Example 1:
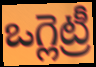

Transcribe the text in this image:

ఒగ్లెట్రీ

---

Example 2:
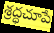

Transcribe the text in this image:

శ్రద్ధచూపే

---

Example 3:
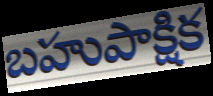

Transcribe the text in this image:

బహుపాక్షిక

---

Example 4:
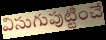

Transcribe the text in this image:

విసుగుపుట్టించే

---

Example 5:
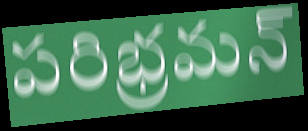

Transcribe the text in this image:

పరిభ్రమన్